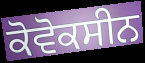
ਕੋਵੋਕਸੀਨ